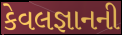
કેવલજ્ઞાનની